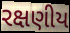
રક્ષણીય